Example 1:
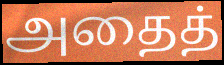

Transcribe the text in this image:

அதைத்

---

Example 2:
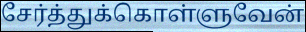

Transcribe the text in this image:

சேர்த்துக்கொள்ளுவேன்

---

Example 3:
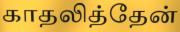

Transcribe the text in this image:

காதலித்தேன்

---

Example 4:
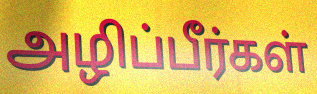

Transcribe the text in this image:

அழிப்பீர்கள்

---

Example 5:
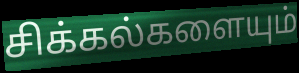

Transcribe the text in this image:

சிக்கல்களையும்